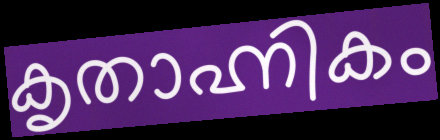
കൃതാഹ്നികം